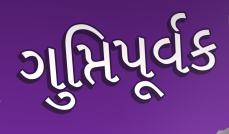
ગુપ્તિપૂર્વક